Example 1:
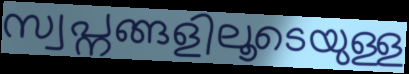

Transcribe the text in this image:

സ്വപ്നങ്ങളിലൂടെയുള്ള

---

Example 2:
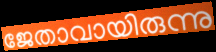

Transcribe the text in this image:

ജേതാവായിരുന്നു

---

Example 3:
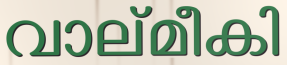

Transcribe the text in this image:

വാല്മീകി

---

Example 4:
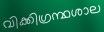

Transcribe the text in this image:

വിക്കിഗ്രന്ഥശാല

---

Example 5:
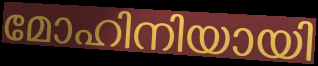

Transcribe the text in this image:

മോഹിനിയായി